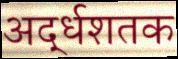
अर्द्धशतक